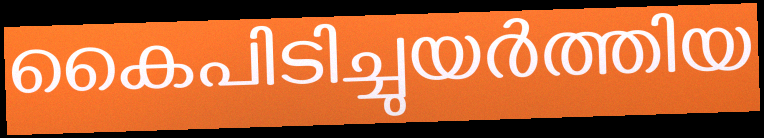
കൈപിടിച്ചുയർത്തിയ